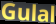
Gulal